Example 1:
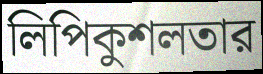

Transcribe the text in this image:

লিপিকুশলতার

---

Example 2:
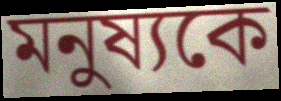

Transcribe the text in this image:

মনুষ্যকে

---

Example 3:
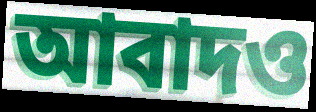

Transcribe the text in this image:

আবাদও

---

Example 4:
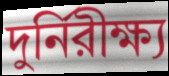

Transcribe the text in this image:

দুর্নিরীক্ষ্য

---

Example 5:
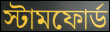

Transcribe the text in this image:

স্টামফোর্ড